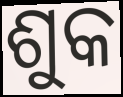
ଶୁକ